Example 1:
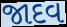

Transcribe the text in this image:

જાદવ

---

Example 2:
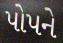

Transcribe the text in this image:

પોપને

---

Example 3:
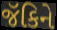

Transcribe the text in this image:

જૅકિને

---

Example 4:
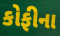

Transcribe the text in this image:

કોફીના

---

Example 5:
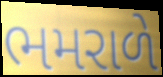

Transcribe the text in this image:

ભમરાળે